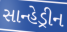
સાન્હેડ્રીન